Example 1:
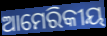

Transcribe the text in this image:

ଆମେରିକୀୟ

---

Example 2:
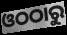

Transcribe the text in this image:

ଓଠଠାରୁ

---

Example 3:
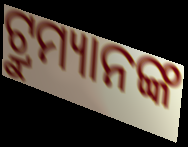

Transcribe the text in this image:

ଟ୍ରୁମ୍ୟାନଙ୍କ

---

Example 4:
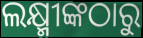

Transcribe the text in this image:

ଲକ୍ଷ୍ମୀଙ୍କଠାରୁ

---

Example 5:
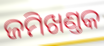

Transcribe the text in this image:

ଜମିଖଣ୍ତକ